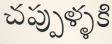
చప్పుళ్ళకి